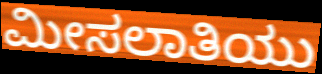
ಮೀಸಲಾತಿಯು